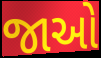
જાઓ